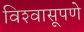
विश्वासूपणे